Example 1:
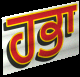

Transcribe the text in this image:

ਹਭਾ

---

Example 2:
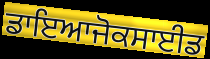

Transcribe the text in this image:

ਡਾਇਆਜੋਕਸਾਈਡ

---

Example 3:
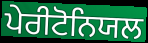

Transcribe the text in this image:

ਪੇਰੀਟੋਨਿਯਲ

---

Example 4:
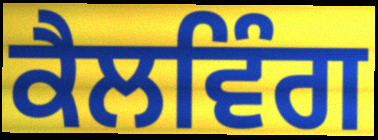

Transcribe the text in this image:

ਕੈਲਵਿੰਗ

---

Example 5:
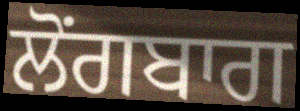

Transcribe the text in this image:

ਲੋਂਗਬਾਗ